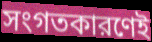
সংগতকারণেই